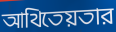
আথিতেয়তার